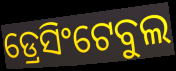
ଡ୍ରେସିଂଟେବୁଲ